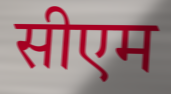
सीएम